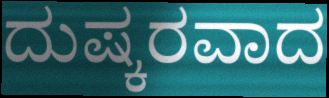
ದುಷ್ಕರವಾದ